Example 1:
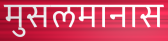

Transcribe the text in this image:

मुसलमानास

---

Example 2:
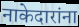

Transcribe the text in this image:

नाकेदारांना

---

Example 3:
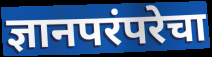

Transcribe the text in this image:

ज्ञानपरंपरेचा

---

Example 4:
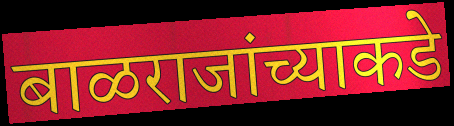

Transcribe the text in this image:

बाळराजांच्याकडे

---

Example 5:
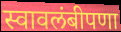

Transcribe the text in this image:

स्वावलंबीपणा